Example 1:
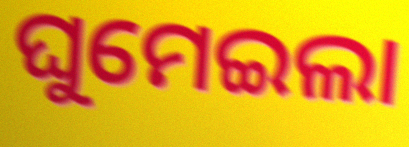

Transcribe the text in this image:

ଘୁମେଇଲା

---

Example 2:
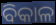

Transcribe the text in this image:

ବିକାଳ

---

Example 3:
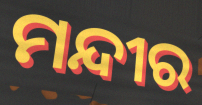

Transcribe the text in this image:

ମନ୍ଦୀର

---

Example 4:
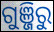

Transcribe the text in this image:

ଗୁଞ୍ଜିରୁ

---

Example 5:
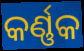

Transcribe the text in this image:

କର୍ଣ୍ଣକ